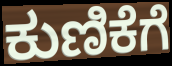
ಕುಣಿಕೆಗೆ